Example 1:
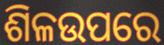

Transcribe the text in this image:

ଶିଳଉପରେ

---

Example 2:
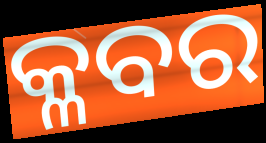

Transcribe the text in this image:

କ୍ଳବର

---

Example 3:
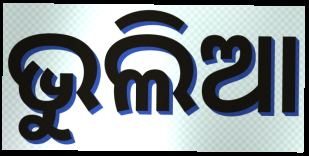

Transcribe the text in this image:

ଭୁଲିଆ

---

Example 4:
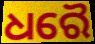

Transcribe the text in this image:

ଧରୈ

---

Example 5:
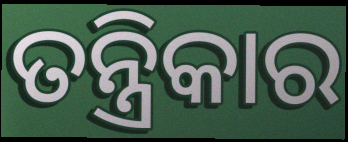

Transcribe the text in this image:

ତନ୍ତ୍ରିକାର